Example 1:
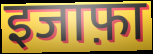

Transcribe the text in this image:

इजाफ़ा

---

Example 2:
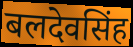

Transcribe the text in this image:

बलदेवसिंह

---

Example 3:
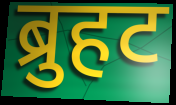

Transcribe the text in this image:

ब्रुहट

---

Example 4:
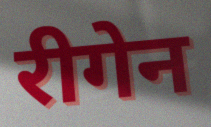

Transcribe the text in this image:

रीगेन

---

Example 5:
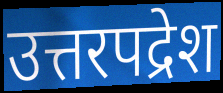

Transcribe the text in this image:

उत्तरपद्रेश